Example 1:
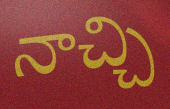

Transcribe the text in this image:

నాచ్చి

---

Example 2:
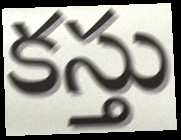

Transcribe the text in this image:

కస్తు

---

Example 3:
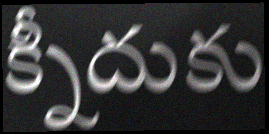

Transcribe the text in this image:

క్నీదుకు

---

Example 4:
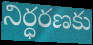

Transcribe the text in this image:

నిర్ధరణకు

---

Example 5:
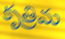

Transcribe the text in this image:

కృత్రిమ